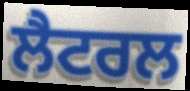
ਲੈਟਰਲ